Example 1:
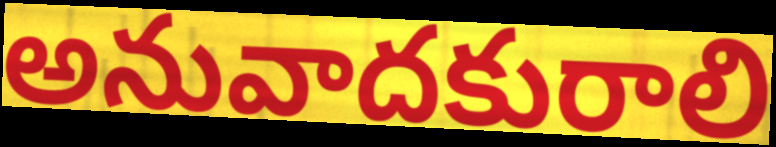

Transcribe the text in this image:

అనువాదకురాలి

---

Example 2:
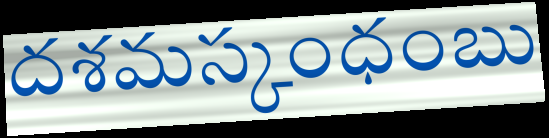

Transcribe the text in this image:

దశమస్కంధంబు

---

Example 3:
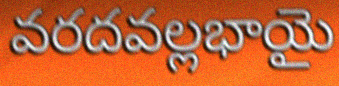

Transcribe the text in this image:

వరదవల్లభాయై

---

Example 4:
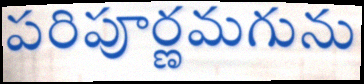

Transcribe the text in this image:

పరిపూర్ణమగును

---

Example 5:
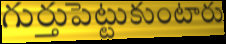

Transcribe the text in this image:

గుర్తుపెట్టుకుంటారు